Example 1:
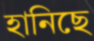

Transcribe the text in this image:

হানিছে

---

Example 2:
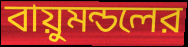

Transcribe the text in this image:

বায়ুমন্ডলের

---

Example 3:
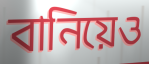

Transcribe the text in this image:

বানিয়েও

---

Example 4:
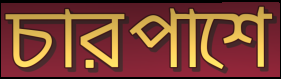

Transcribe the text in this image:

চারপাশে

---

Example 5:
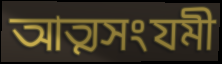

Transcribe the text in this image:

আত্মসংযমী